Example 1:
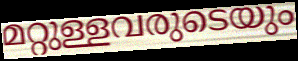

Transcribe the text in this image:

മറ്റുള്ളവരുടെയും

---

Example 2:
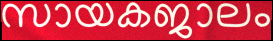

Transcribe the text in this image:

സായകജാലം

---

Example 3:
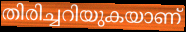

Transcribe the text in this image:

തിരിച്ചറിയുകയാണ്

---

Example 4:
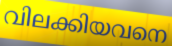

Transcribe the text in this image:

വിലക്കിയവനെ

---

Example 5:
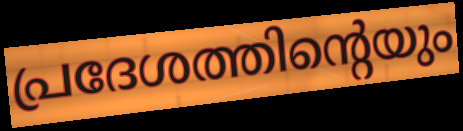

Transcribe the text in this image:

പ്രദേശത്തിന്റെയും